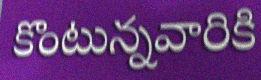
కొంటున్నవారికి